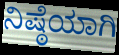
ನಿಷ್ಠೆಯಾಗಿ